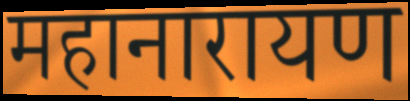
महानारायण